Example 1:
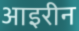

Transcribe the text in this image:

आइरीन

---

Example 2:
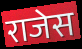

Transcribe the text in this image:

राजेस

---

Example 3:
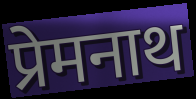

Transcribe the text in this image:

प्रेमनाथ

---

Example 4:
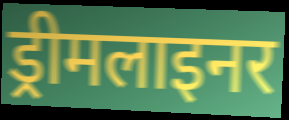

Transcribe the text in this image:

ड्रीमलाइनर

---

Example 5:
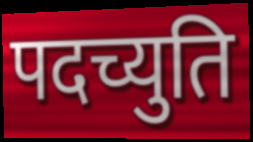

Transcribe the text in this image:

पदच्युति